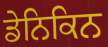
ਡੇਨਿਕਿਨ